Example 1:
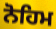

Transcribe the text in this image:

ਨੋਹਿਮ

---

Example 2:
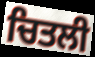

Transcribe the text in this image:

ਚਿਤਲੀ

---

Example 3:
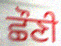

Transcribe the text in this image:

ਛੌਣੀ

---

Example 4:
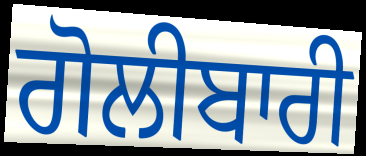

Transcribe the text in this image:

ਗੋਲੀਬਾਰੀ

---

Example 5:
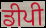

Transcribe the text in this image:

ਡੀਪੀ